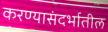
करण्यासंदर्भातील